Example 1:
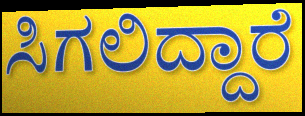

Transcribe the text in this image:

ಸಿಗಲಿದ್ದಾರೆ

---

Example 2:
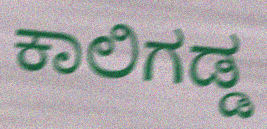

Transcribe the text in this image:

ಕಾಲಿಗಡ್ಡ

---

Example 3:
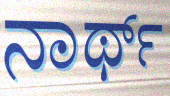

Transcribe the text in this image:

ನಾರ್ಥ್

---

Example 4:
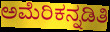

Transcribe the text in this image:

ಅಮೆರಿಕನ್ನಡಿತಿ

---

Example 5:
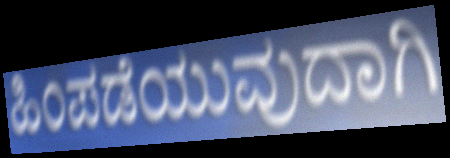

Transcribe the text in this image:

ಹಿಂಪಡೆಯುವುದಾಗಿ